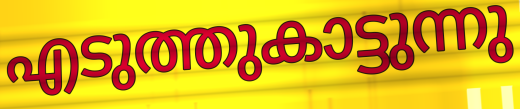
എടുത്തുകാട്ടുന്നു